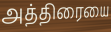
அத்திரையை